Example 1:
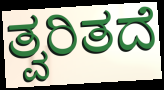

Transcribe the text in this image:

ತ್ವರಿತದೆ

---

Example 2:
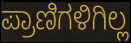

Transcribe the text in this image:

ಪ್ರಾಣಿಗಳಿಗಿಲ್ಲ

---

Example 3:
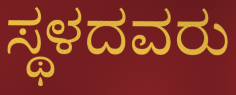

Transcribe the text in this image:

ಸ್ಥಳದವರು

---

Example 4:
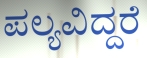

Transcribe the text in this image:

ಪಲ್ಯವಿದ್ದರೆ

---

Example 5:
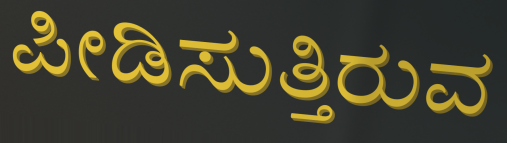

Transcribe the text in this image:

ಪೀಡಿಸುತ್ತಿರುವ